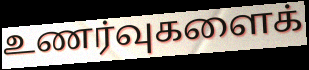
உணர்வுகளைக்